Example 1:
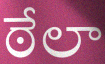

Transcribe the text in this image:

ఠేలా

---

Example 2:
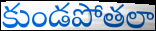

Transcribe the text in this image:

కుండపోతలా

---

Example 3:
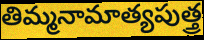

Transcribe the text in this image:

తిమ్మనామాత్యపుత్త్ర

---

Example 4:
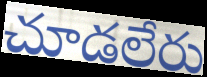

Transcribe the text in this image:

చూడలేరు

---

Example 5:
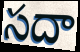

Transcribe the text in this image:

సదా